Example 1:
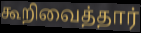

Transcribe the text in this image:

கூறிவைத்தார்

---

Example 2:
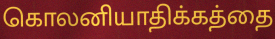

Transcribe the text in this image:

கொலனியாதிக்கத்தை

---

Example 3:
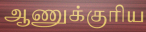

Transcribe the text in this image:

ஆணுக்குரிய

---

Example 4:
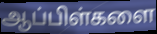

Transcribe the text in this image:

ஆப்பிள்களை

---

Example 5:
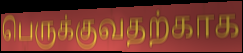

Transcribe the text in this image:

பெருக்குவதற்காக